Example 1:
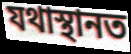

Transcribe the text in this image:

যথাস্থানত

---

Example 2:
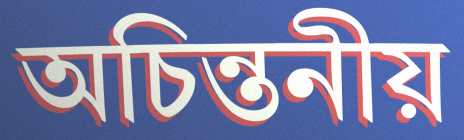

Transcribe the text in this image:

অচিন্তনীয়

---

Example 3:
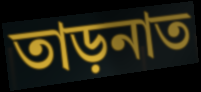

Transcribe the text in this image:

তাড়নাত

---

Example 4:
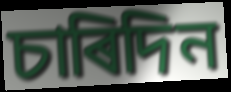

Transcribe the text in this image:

চাৰিদিন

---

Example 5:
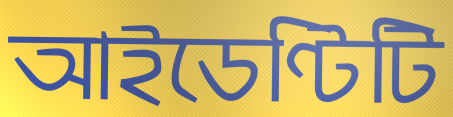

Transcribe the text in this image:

আইডেণ্টিটি